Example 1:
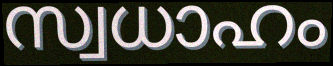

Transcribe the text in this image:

സ്വധാഹം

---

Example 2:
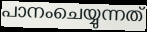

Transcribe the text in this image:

പാനംചെയ്യുന്നത്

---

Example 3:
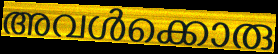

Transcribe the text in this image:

അവൾക്കൊരു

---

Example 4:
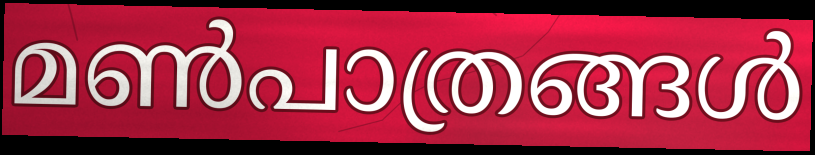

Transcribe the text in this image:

മൺപാത്രങ്ങൾ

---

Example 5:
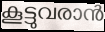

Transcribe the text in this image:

കൂട്ടുവരാൻ